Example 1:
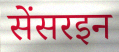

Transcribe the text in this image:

सेंसरइन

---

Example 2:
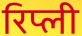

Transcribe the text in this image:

रिप्ली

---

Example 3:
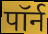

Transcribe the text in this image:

पॉर्न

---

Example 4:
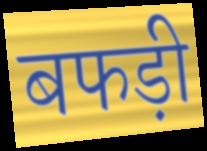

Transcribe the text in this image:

बफड़ी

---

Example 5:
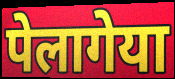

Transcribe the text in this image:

पेलागेया